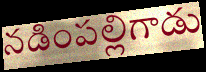
నడింపల్లిగాడు